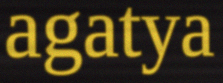
agatya